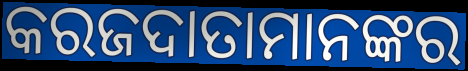
କରଜଦାତାମାନଙ୍କର